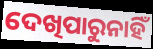
ଦେଖିପାରୁନାହିଁ